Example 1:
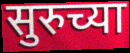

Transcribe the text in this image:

सुरुच्या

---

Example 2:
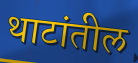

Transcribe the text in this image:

थाटांतील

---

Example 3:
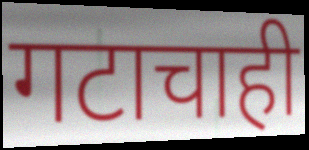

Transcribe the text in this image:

गटाचाही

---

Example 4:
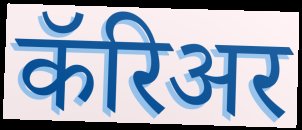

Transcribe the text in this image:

कॅरिअर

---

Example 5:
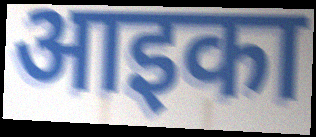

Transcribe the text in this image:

आइका